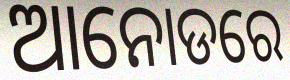
ଆନୋଡରେ